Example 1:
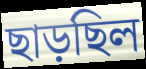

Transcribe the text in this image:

ছাড়ছিল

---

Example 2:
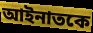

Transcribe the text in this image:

আইনাতকে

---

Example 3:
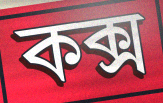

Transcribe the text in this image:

কক্স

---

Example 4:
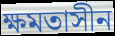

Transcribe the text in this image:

ক্ষমতাসীন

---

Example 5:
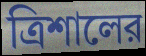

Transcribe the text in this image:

ত্রিশালের